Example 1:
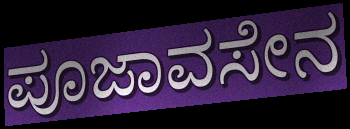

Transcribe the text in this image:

ಪೂಜಾವಸೇನ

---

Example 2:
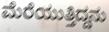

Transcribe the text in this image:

ಮೆರೆಯುತ್ತಿದ್ದನು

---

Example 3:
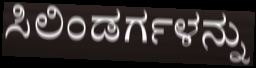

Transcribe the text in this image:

ಸಿಲಿಂಡರ್ಗಳನ್ನು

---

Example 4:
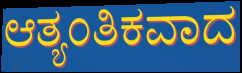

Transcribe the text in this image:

ಆತ್ಯಂತಿಕವಾದ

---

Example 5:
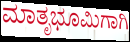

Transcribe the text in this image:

ಮಾತೃಭೂಮಿಗಾಗಿ